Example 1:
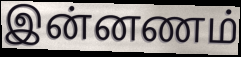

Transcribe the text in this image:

இன்னணம்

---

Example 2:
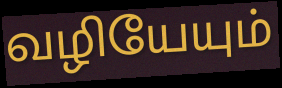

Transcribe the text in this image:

வழியேயும்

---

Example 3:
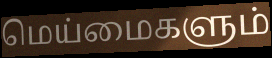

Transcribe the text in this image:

மெய்மைகளும்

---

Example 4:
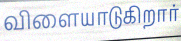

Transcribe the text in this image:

விளையாடுகிறார்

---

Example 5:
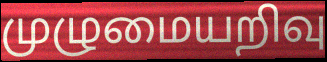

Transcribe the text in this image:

முழுமையறிவு